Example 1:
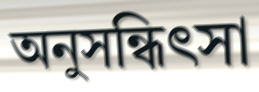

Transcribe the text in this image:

অনুসন্ধিৎসা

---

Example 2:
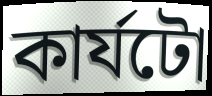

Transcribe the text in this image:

কাৰ্যটো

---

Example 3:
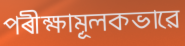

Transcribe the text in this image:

পৰীক্ষামূলকভাৱে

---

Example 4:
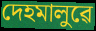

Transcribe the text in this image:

দেহমালুৱে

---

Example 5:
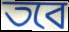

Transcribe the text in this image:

তবে